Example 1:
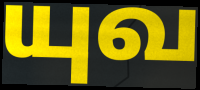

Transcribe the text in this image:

யுவ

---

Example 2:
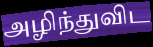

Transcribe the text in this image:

அழிந்துவிட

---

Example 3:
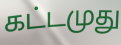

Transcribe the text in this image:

கட்டமுது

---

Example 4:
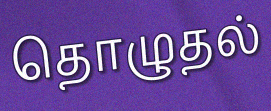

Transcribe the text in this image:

தொழுதல்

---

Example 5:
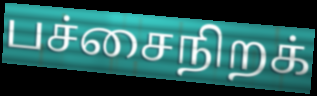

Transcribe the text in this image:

பச்சைநிறக்